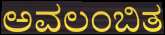
ಅವಲಂಬಿತ